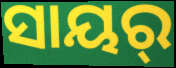
ସାୟର୍